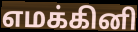
எமக்கினி